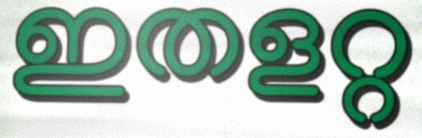
ഇതളറ്റ